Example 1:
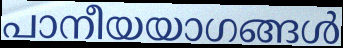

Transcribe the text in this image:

പാനീയയാഗങ്ങൾ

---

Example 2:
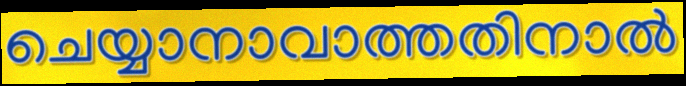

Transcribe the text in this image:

ചെയ്യാനാവാത്തതിനാൽ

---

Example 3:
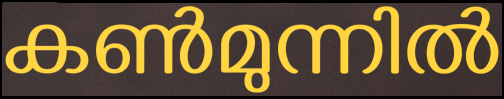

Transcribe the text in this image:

കൺമുന്നിൽ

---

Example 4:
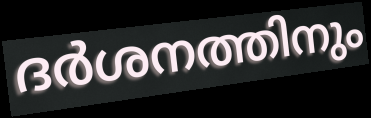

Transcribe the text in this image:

ദർശനത്തിനും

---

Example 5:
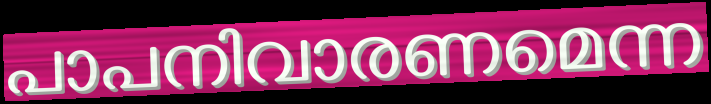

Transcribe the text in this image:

പാപനിവാരണമെന്ന